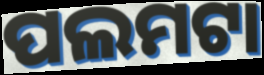
ପଲମଟା